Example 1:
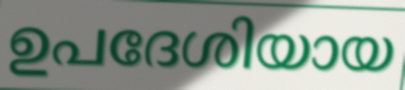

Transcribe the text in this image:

ഉപദേശിയായ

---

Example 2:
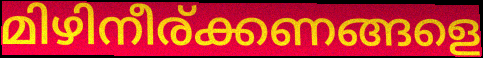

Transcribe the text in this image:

മിഴിനീര്ക്കണങ്ങളെ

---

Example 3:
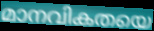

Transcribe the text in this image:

മാനവികതയെ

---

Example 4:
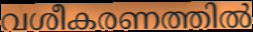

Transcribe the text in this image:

വശീകരണത്തിൽ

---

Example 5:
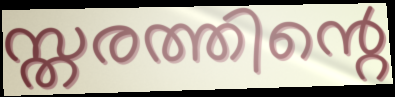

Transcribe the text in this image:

സ്തരത്തിന്റെ